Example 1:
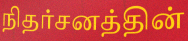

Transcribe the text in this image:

நிதர்சனத்தின்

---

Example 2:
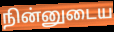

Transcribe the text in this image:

நின்னுடைய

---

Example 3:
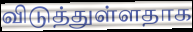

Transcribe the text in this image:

விடுத்துள்ளதாக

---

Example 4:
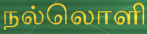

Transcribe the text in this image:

நல்லொளி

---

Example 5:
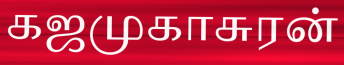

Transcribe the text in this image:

கஜமுகாசுரன்